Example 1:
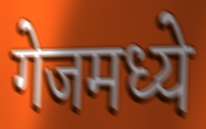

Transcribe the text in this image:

गेजमध्ये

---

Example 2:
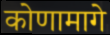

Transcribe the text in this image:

कोणामागे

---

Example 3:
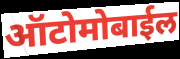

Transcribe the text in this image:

ऑटोमोबाईल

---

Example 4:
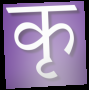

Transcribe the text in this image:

कृ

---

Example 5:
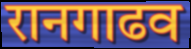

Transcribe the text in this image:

रानगाढव